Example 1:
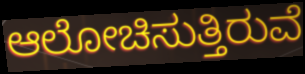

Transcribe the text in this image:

ಆಲೋಚಿಸುತ್ತಿರುವೆ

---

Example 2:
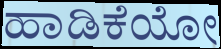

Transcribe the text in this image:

ಹಾಡಿಕೆಯೋ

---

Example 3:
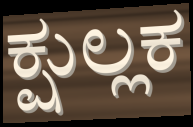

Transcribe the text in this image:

ಕ್ಷುಲ್ಲಕ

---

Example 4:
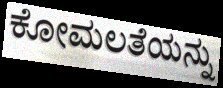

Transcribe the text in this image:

ಕೋಮಲತೆಯನ್ನು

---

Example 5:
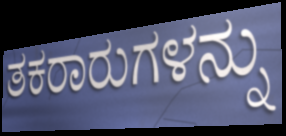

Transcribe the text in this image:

ತಕರಾರುಗಳನ್ನು